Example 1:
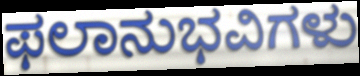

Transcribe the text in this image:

ಫಲಾನುಭವಿಗಳು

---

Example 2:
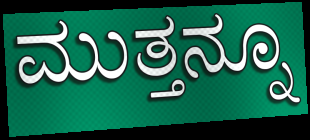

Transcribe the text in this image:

ಮುತ್ತನ್ನೂ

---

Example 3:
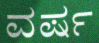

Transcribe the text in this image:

ವರ್ಷ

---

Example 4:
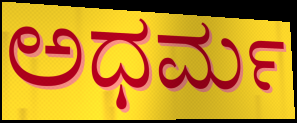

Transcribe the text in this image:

ಅಧರ್ಮ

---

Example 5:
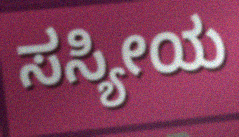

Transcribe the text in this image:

ಸಸ್ಯೀಯ